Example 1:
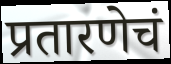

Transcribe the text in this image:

प्रतारणेचं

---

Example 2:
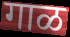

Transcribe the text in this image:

गाळ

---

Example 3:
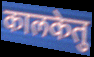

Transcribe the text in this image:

कालकेतु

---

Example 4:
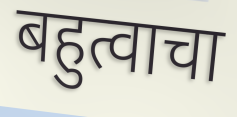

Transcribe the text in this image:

बहुत्वाचा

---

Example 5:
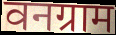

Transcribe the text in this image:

वनग्राम